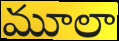
మూలా